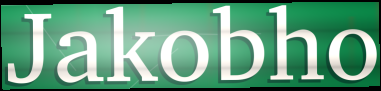
Jakobho